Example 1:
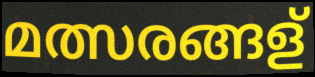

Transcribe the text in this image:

മത്സരങ്ങള്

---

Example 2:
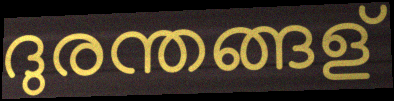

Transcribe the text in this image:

ദുരന്തങ്ങള്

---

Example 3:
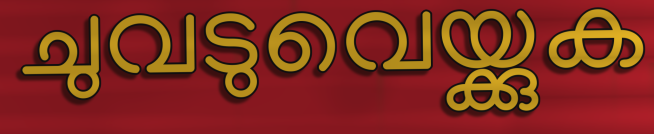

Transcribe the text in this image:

ചുവടുവെയ്ക്കുക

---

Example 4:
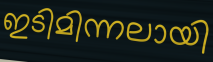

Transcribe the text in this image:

ഇടിമിന്നലായി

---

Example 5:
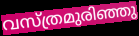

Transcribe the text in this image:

വസ്ത്രമുരിഞ്ഞു